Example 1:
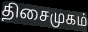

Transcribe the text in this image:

திசைமுகம்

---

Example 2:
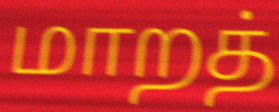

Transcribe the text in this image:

மாறத்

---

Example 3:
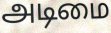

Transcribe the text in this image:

அடிமை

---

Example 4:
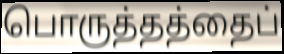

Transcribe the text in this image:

பொருத்தத்தைப்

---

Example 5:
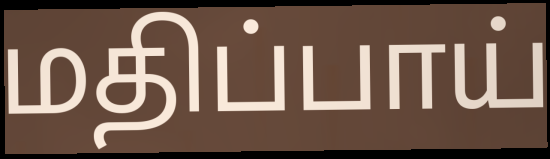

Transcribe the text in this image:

மதிப்பாய்